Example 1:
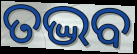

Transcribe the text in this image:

ତଦ୍ଭବ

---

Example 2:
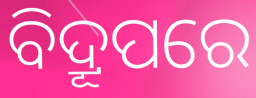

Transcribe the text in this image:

ବିଦ୍ରୂପରେ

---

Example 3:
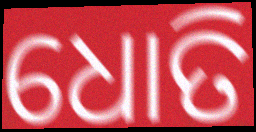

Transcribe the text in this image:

ଧୋତି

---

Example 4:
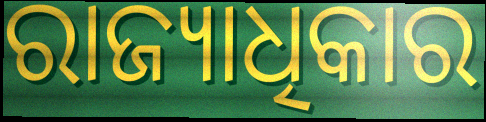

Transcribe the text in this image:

ରାଜ୍ୟାଧିକାର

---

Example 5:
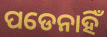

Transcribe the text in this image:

ପଡେନାହିଁ